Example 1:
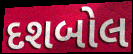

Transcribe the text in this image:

દશબોલ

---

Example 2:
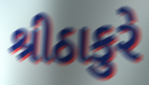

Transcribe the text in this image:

શ્રીઠાકુરે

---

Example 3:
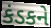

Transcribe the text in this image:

કંડકને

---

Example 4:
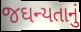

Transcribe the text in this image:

જઘન્યતાનું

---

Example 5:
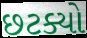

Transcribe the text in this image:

છટક્યો